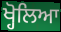
ਖ੍ਹੋਲਿਆ